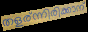
തളര്ന്നിരിക്കാന്